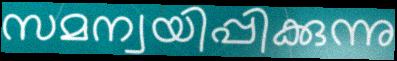
സമന്വയിപ്പിക്കുന്നു